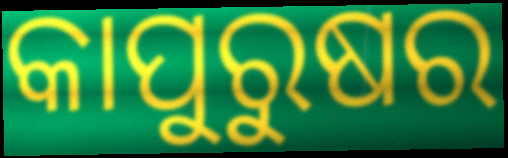
କାପୁରୁଷର